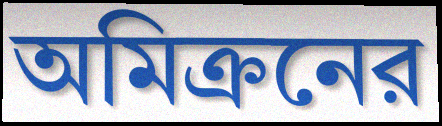
অমিক্রনের